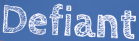
Defiant